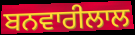
ਬਨਵਾਰੀਲਾਲ